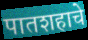
पातशहाचे